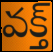
వక్త్